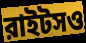
রাইটসও